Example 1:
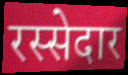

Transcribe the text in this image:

रस्सेदार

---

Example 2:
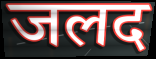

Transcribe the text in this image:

जलद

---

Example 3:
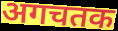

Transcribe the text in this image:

अगचतक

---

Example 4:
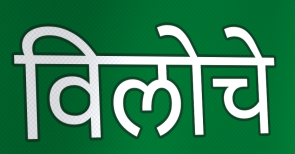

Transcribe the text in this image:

विलोचे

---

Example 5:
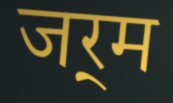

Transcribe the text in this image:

जर्म